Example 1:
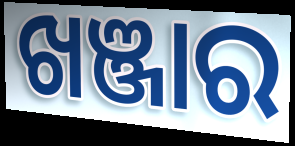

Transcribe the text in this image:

ଖଞ୍ଜାର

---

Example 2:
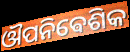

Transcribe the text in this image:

ଔପନିଵେଶିକ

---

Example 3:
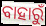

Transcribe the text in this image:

ବାହାରୁଁ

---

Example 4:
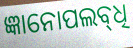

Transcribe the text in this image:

ଜ୍ଞାନୋପଲବ୍‌ଧି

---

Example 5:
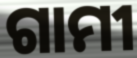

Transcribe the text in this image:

ଗାମୀ